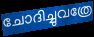
ചോദിച്ചുവത്രേ